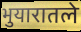
भुयारातले